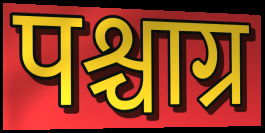
पश्चाग्र